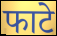
फाटे